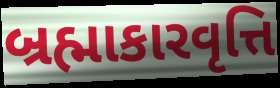
બ્રહ્માકારવૃત્તિ